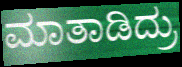
ಮಾತಾಡಿದ್ರು